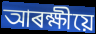
আৰক্ষীয়ে